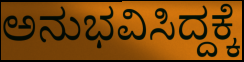
ಅನುಭವಿಸಿದ್ದಕ್ಕೆ